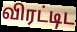
விரட்டிட